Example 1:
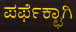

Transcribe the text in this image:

ಪರ್ಫೆಕ್ಟಾಗಿ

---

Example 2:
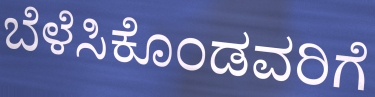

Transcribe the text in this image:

ಬೆಳೆಸಿಕೊಂಡವರಿಗೆ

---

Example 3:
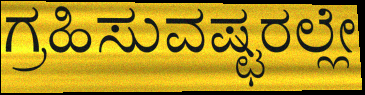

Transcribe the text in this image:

ಗ್ರಹಿಸುವಷ್ಟರಲ್ಲೇ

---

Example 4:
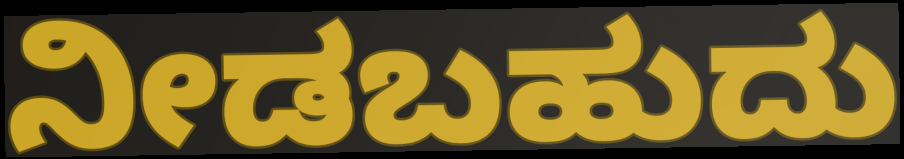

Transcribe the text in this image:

ನೀಡಬಹುದು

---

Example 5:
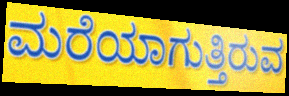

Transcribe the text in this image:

ಮರೆಯಾಗುತ್ತಿರುವ